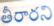
తీరారని